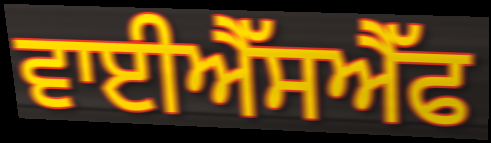
ਵਾਈਐੱਸਐੱਫ